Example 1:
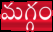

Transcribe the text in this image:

మగ్గం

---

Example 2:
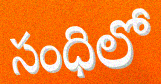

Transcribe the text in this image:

సంధిలో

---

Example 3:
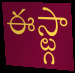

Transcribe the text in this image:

ఈస్ట్గా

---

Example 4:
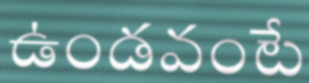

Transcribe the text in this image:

ఉండవంటే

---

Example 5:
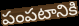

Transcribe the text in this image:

పంపటానికి